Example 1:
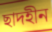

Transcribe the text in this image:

ছাদহীন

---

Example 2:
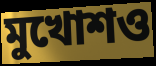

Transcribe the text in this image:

মুখোশও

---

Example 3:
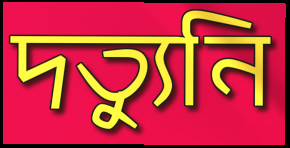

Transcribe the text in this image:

দত্যুনি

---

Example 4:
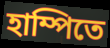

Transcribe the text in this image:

হাম্পিতে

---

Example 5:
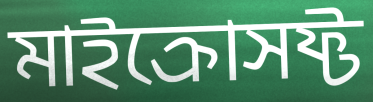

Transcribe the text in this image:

মাইক্রোসফ্ট